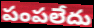
పంపలేదు